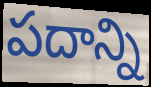
పదాన్ని